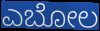
ಎಬೋಲ